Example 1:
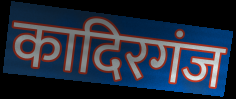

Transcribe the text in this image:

कादिरगंज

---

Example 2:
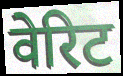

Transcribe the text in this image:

वेरिट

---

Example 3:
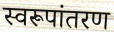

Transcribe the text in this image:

स्वरूपांतरण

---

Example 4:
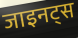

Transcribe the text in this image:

जाइनट्स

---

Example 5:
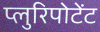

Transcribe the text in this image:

प्लुरिपोटेंट